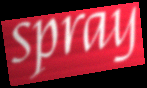
spray